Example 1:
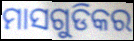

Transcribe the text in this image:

ମାସଗୁଡିକର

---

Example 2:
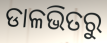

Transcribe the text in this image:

ଡାଳଭିତରୁ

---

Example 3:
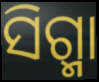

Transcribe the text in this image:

ସିଗ୍ମା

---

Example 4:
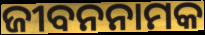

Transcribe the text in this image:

ଜୀବନନାମକ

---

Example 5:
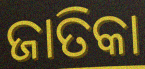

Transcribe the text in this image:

ଜାତିକା